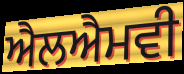
ਐਲਐਮਵੀ